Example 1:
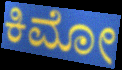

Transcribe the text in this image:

ಕಿಮೋ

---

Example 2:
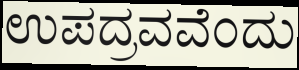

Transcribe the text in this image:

ಉಪದ್ರವವೆಂದು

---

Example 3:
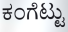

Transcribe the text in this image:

ಕಂಗೆಟ್ಟು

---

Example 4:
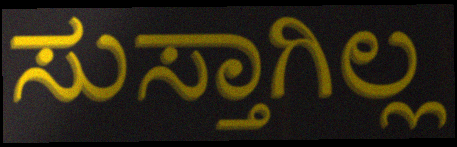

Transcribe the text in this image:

ಸುಸ್ತಾಗಿಲ್ಲ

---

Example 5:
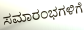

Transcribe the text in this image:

ಸಮಾರಂಭಗಳಿಗೆ